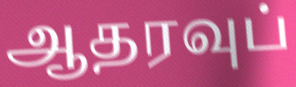
ஆதரவுப்